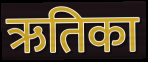
ऋतिका